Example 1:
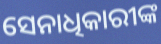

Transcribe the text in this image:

ସେନାଧିକାରୀଙ୍କ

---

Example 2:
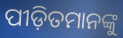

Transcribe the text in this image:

ପୀଡ଼ିତମାନଙ୍କୁ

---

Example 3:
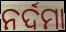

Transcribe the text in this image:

ନର୍ଦମା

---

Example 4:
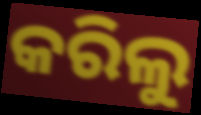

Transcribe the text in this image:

କରିଲୁ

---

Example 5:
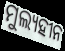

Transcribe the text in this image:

ମୁଲ୍ୟହୀନ